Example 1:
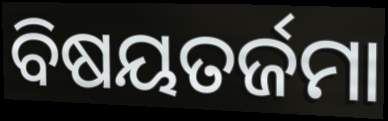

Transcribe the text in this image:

ବିଷୟତର୍ଜମା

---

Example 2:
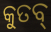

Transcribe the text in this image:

କୁତବ୍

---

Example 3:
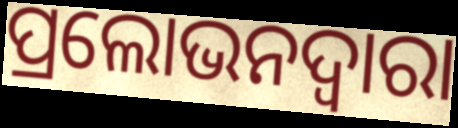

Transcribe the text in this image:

ପ୍ରଲୋଭନଦ୍ୱାରା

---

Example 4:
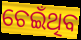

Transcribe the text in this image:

ଚେଇଁଥିବ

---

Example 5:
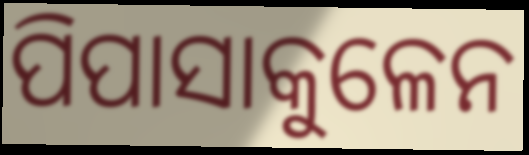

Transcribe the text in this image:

ପିପାସାକୁଳେନ